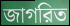
জাগরিত